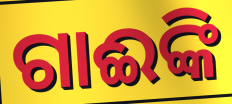
ଗାଈଙ୍କି